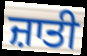
ਜ਼ਾਤੀ